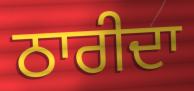
ਠਾਰੀਦਾ